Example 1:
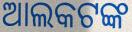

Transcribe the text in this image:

ଆଲକଟଙ୍କ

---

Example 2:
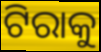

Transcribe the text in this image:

ଟିରାକୁ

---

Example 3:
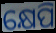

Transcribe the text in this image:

କ୍ଷେପି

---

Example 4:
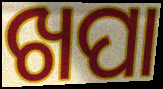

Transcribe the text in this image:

ଖପା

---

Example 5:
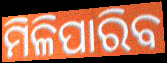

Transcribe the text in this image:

ମିଳିପାରିବ